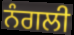
ਨੰਗਲੀ